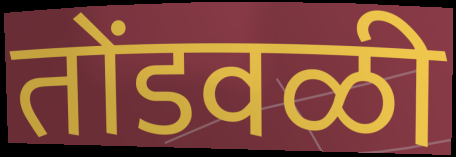
तोंडवळी